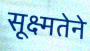
सूक्ष्मतेने